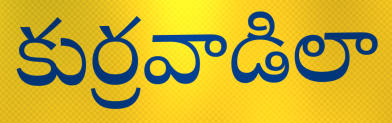
కుర్రవాడిలా